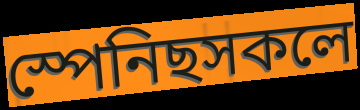
স্পেনিছসকলে